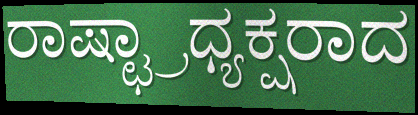
ರಾಷ್ಟ್ರಾಧ್ಯಕ್ಷರಾದ